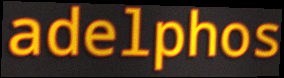
adelphos